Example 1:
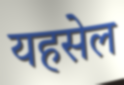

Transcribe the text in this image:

यहसेल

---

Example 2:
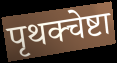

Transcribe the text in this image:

पृथक्चेष्टा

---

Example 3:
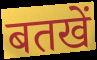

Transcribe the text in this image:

बतखें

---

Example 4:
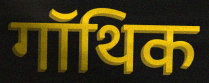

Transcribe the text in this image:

गॉथिक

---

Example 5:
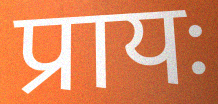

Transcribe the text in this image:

प्रायः